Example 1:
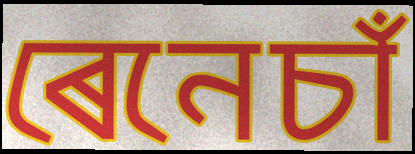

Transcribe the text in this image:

ৰেনেচাঁ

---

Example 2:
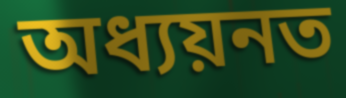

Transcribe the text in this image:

অধ্যয়নত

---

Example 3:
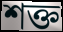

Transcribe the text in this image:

শক্ত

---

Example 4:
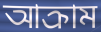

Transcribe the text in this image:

আক্ৰাম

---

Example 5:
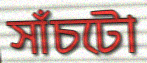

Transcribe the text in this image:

সাঁচটো